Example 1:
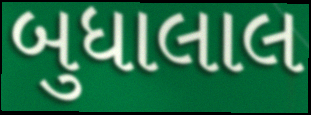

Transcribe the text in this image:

બુધાલાલ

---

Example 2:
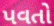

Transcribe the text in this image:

પવતો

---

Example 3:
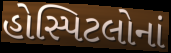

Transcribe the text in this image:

હોસ્પિટલોનાં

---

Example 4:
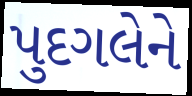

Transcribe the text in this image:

પુદગલેને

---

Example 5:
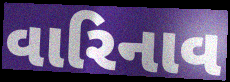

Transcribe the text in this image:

વારિનાવ